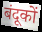
बंदूकों